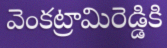
వెంకట్రామిరెడ్డికి